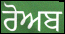
ਰੋਅਬ